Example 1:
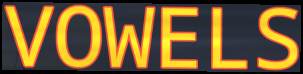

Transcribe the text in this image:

VOWELS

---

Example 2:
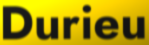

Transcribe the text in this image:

Durieu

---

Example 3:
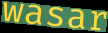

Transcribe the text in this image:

wasar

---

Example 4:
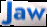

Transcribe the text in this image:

Jaw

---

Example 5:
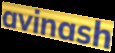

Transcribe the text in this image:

avinash